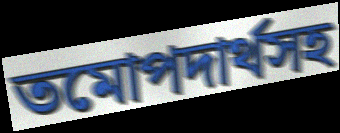
তমোপদার্থসহ